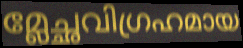
മ്ലേച്ഛവിഗ്രഹമായ